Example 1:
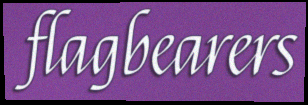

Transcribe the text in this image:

flagbearers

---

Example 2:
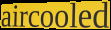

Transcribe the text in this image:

aircooled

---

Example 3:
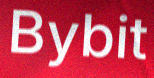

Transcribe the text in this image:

Bybit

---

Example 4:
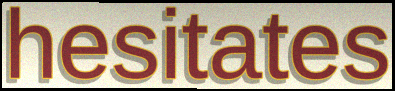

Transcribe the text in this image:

hesitates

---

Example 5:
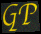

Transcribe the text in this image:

GP